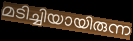
മടിച്ചിയായിരുന്ന